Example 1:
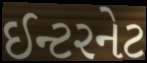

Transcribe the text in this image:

ઈન્ટરનેટ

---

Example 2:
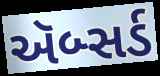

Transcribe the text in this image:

ઍબ્સર્ડ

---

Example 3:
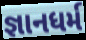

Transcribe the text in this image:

જ્ઞાનધર્મ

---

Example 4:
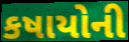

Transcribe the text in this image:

કષાયોની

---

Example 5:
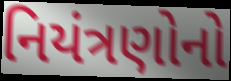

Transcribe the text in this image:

નિયંત્રણોનો